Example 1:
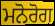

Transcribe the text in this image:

ਮਨੋਰੋਗ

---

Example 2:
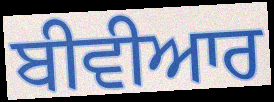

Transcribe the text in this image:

ਬੀਵੀਆਰ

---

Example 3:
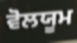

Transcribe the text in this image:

ਵੋਲਯੂਮ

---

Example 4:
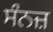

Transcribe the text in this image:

ਸੰਨਜ਼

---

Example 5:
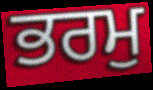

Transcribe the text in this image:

ਭਰਮੁ